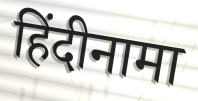
हिंदीनामा